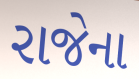
રાજેના